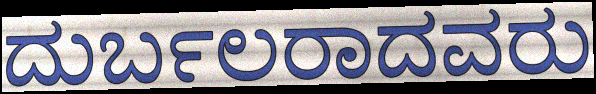
ದುರ್ಬಲರಾದವರು